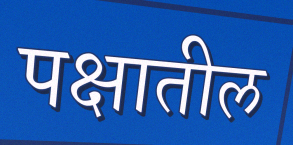
पक्षातील